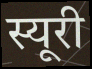
स्यूरी